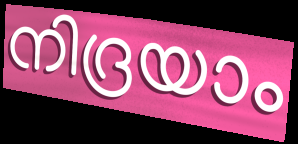
നിദ്രയാം